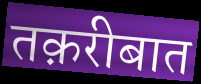
तक़रीबात